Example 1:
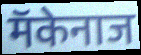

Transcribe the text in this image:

मॅकेनाज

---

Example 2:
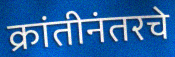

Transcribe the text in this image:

क्रांतीनंतरचे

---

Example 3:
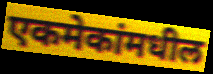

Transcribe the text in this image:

एकमेकांमधील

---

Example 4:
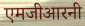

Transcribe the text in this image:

एमजीआरनी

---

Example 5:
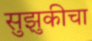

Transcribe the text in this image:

सुझुकीचा